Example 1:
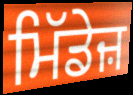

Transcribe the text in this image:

ਮਿੱਡੇਜ਼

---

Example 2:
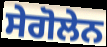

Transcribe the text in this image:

ਸੇਗੋਲੇਨ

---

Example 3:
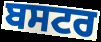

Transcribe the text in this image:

ਬਸਟਰ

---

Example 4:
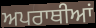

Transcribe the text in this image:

ਅਪਰਾਥੀਆਂ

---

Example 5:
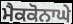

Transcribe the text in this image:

ਮੈਕਕੋਨਾਘੇ